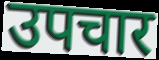
उपचार